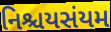
નિશ્ચયસંયમ